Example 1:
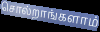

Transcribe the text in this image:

சொல்றாங்களாம்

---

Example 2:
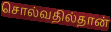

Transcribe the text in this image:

சொல்வதில்தான்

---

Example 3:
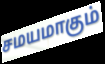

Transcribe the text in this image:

சமயமாகும்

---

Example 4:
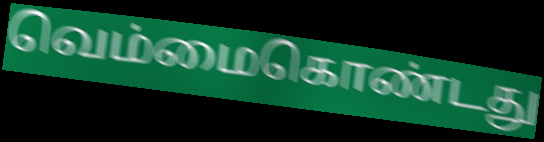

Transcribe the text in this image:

வெம்மைகொண்டது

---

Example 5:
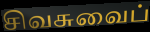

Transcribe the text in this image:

சிவசுவைப்